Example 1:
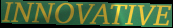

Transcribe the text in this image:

INNOVATIVE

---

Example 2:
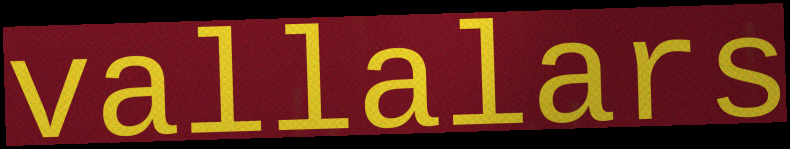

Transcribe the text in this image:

vallalars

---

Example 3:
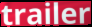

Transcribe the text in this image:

trailer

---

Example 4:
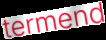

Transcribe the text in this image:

termend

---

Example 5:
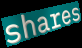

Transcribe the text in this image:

shares